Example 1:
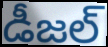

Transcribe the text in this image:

డీజల్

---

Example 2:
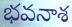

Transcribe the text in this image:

భవనాశ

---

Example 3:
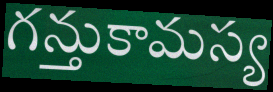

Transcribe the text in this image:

గన్తుకామస్య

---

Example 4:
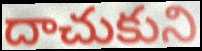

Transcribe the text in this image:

దాచుకుని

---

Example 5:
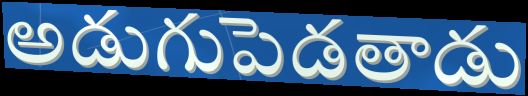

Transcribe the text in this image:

అడుగుపెడతాడు